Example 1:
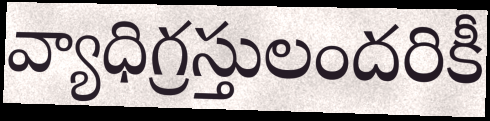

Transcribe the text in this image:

వ్యాధిగ్రస్తులందరికీ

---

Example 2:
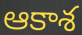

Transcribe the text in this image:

ఆకాశ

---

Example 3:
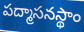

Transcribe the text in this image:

పద్మాసనస్థాం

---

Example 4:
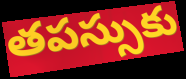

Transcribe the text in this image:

తపస్సుకు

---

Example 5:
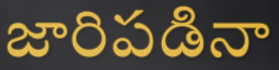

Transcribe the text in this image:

జారిపడినా